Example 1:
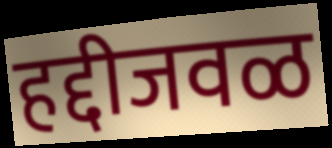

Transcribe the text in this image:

हद्दीजवळ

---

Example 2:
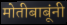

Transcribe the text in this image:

मोतीबाबूंनी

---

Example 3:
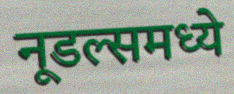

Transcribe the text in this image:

नूडल्समध्ये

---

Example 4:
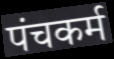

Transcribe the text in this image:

पंचकर्म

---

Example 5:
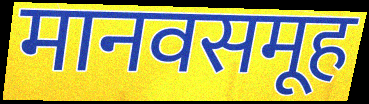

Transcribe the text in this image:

मानवसमूह